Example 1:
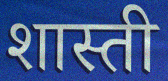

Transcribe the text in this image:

शास्ती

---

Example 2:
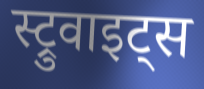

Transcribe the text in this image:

स्ट्रुवाइट्स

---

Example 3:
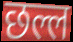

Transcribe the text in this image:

छल्ल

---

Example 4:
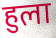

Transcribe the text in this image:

हुला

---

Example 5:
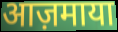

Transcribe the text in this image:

आज़माया